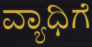
ವ್ಯಾಧಿಗೆ